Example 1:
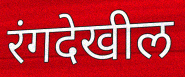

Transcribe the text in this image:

रंगदेखील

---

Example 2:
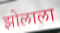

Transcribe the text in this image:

झोलाला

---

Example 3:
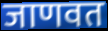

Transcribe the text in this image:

जाणवत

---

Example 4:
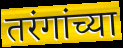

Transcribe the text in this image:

तरंगांच्या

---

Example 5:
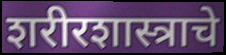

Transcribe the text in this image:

शरीरशास्त्राचे